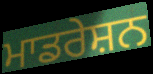
ਮਾਡਰੇਸ਼ਨ